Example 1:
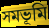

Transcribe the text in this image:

সমভূমি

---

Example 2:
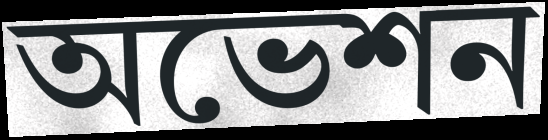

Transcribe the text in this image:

অভেশন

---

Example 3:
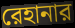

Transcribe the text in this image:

রেহানার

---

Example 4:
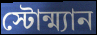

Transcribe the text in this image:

স্টোন্ম্যান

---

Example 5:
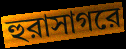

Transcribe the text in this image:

হুরাসাগরে